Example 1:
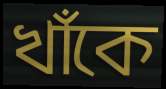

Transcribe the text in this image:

খাঁকে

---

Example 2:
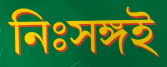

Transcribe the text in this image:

নিঃসঙ্গই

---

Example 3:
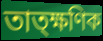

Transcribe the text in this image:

তাত্ক্ষণিক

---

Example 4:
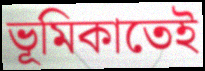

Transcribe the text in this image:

ভূমিকাতেই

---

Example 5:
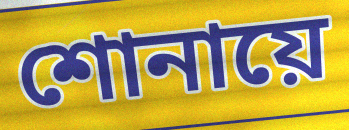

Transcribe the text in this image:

শোনায়ে